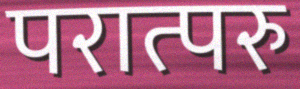
परात्परु